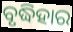
ବୃଦ୍ଧିହାର